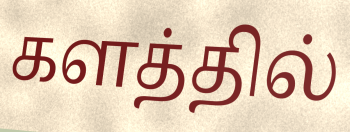
களத்தில்